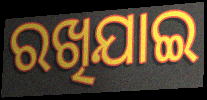
ରଖିଯାଇ